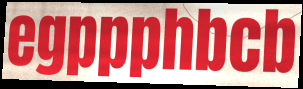
egppphbcb